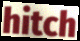
hitch